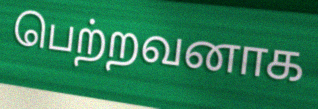
பெற்றவனாக